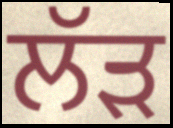
ਲੱੜ